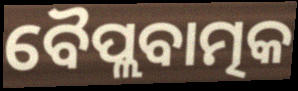
ବୈପ୍ଲବାତ୍ମକ